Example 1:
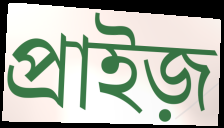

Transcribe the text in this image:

প্রাইজ়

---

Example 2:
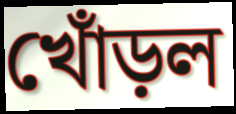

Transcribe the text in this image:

খোঁড়ল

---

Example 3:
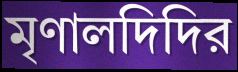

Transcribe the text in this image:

মৃণালদিদির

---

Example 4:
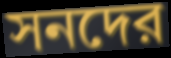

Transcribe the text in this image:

সনদের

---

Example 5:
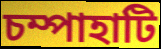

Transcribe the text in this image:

চম্পাহাটি